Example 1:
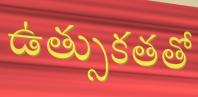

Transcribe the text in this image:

ఉత్సుకతతో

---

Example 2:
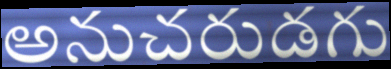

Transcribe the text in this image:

అనుచరుడగు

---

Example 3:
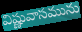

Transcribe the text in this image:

విష్ణువాసమును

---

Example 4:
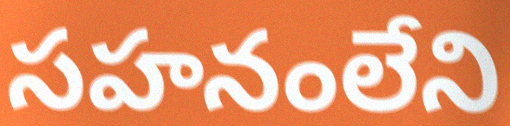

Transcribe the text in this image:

సహనంలేని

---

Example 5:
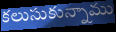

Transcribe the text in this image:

కలుసుకున్నాము